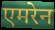
एमरेन